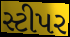
સ્ટીપર